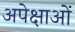
अपेक्षाओं